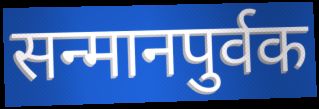
सन्मानपुर्वक